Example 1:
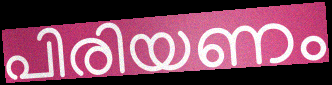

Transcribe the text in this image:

പിരിയണം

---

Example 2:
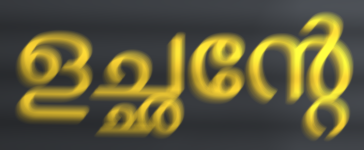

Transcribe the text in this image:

ളച്ഛന്റേ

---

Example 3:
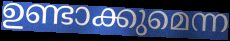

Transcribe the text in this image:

ഉണ്ടാക്കുമെന്ന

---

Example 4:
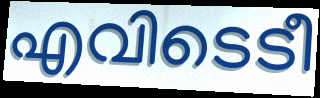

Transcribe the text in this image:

എവിടെടീ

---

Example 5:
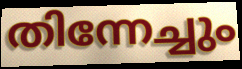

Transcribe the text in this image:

തിന്നേച്ചും